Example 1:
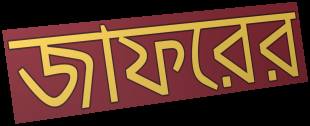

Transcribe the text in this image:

জাফরের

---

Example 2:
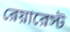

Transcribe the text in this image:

রেয়ারেস্ট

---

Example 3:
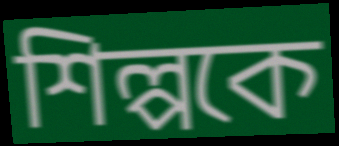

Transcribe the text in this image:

শিল্পকে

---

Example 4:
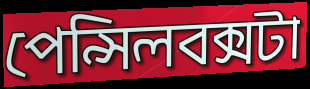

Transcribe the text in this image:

পেন্সিলবক্সটা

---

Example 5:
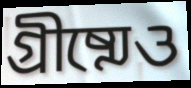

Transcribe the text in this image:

গ্রীষ্মেও